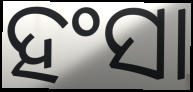
ହଂସା